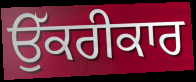
ਉੱਕਰੀਕਾਰ